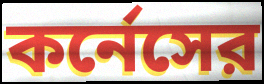
কর্নেসের